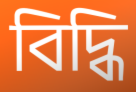
বিদ্ধি